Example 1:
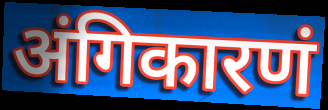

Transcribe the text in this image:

अंगिकारणं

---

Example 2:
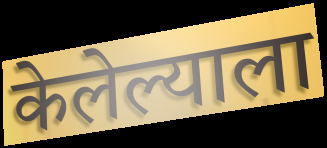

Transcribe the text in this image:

केलेल्याला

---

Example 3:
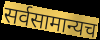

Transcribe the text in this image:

सर्वसामान्यच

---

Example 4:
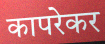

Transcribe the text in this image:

कापरेकर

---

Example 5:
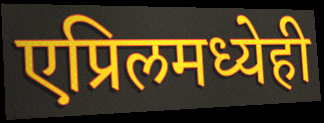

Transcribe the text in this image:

एप्रिलमध्येही